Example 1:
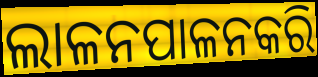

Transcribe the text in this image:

ଲାଳନପାଳନକରି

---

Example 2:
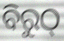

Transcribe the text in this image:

ବିରୁଠ୍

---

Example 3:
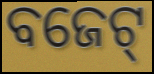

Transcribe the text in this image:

ବଜେଟ୍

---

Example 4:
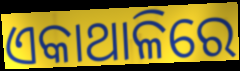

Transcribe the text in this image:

ଏକାଥାଳିରେ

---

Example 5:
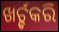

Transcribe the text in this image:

ଖର୍ଚ୍ଚକରି